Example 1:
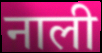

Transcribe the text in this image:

नाली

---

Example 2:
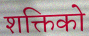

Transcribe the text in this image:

शक्तिको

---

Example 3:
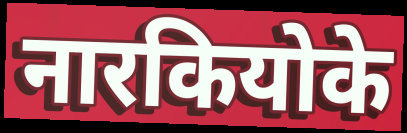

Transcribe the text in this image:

नारकियोके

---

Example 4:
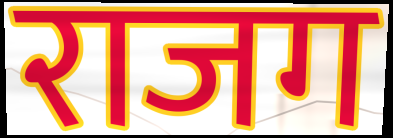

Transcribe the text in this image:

राजग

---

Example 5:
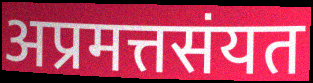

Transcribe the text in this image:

अप्रमत्तसंयत